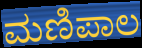
ಮಣಿಪಾಲ